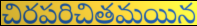
చిరపరిచితమయిన